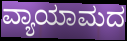
ವ್ಯಾಯಾಮದ